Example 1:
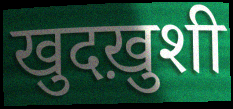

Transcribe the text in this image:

खुदख़ुशी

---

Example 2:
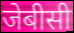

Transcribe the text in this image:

जेबीसी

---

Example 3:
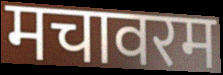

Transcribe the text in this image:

मचावरम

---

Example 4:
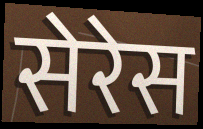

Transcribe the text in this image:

सेरेस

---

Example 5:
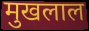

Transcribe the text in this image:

मुखलाल